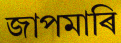
জাপমাৰি